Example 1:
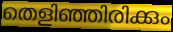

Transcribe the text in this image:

തെളിഞ്ഞിരിക്കും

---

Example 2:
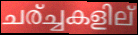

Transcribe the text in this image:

ചര്ച്ചകളില്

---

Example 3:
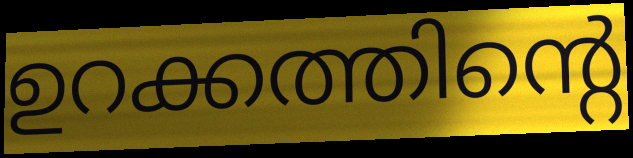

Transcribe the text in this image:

ഉറക്കത്തിന്റെ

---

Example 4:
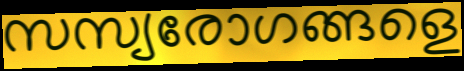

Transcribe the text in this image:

സസ്യരോഗങ്ങളെ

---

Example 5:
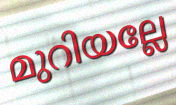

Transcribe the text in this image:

മുറിയല്ലേ